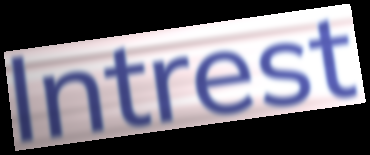
Intrest